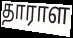
தாராள